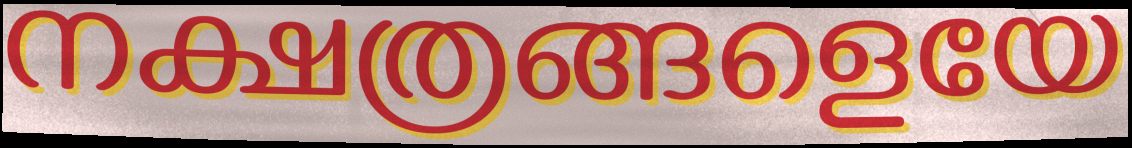
നക്ഷത്രങ്ങളെയേ